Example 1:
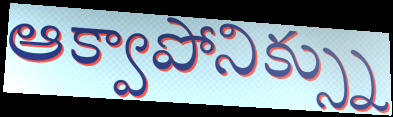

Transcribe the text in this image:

ఆక్వాపోనిక్స్ను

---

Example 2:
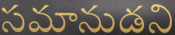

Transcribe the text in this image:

సమానుడని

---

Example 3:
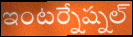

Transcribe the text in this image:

ఇంటర్నేష్నల్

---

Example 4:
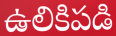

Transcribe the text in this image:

ఉలికిపడి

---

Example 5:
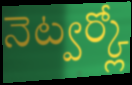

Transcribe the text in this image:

నెట్వర్క్లో